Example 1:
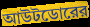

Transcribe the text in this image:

আউটডোরের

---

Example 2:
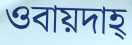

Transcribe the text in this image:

ওবায়দাহ্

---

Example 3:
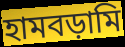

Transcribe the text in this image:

হামবড়ামি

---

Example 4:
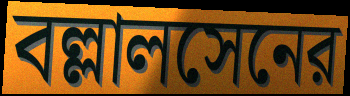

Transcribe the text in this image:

বল্লালসেনের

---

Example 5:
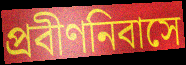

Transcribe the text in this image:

প্রবীণনিবাসে